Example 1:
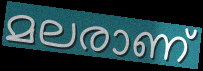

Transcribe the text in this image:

മലരാണ്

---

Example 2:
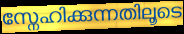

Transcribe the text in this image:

സ്നേഹിക്കുന്നതിലൂടെ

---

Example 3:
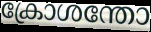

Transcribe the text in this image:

ക്രോശന്തോ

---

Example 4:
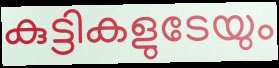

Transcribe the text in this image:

കുട്ടികളുടേയും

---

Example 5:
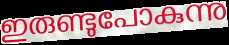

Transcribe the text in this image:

ഇരുണ്ടുപോകുന്നു